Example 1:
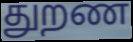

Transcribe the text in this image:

துறண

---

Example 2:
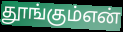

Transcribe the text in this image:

தூங்கும்என்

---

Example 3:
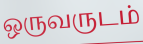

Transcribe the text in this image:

ஒருவருடம்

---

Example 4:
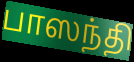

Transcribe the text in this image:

பாஸந்தி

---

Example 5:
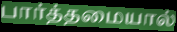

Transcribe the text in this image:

பார்த்தமையால்